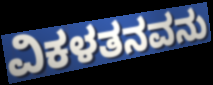
ವಿಕಳತನವನು